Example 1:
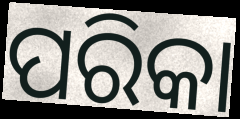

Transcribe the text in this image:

ପରିକା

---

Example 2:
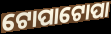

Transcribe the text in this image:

ଟୋପାଟୋପା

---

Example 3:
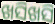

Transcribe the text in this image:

ଖସିଖସି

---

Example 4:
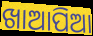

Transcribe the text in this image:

ଖାଆପିଆ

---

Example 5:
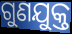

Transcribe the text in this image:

ଗୁଣଯୁକ୍ତ